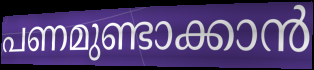
പണമുണ്ടാക്കാൻ